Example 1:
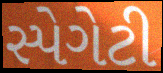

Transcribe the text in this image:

સ્પેગેટી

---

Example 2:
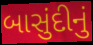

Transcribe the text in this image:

બાસુંદીનું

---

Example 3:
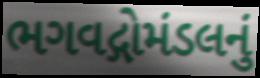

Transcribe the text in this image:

ભગવદ્ગોમંડલનું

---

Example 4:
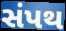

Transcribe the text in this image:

સંપથ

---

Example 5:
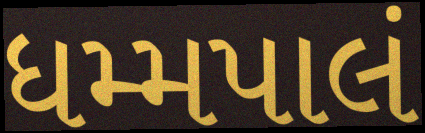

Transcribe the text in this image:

ધમ્મપાલં